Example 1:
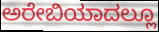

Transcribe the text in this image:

ಅರೇಬಿಯಾದಲ್ಲೂ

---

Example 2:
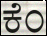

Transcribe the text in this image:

ಕೆಂ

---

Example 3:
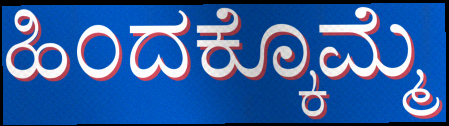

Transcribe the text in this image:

ಹಿಂದಕ್ಕೊಮ್ಮೆ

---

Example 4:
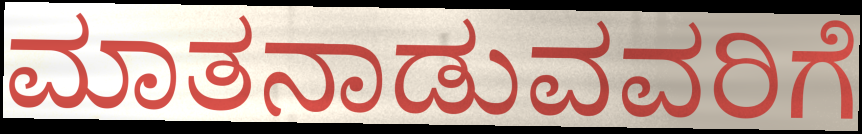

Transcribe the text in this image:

ಮಾತನಾಡುವವರಿಗೆ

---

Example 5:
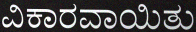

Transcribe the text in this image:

ವಿಕಾರವಾಯಿತು